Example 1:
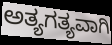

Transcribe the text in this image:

ಅತ್ಯಗತ್ಯವಾಗಿ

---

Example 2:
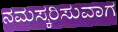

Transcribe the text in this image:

ನಮಸ್ಕರಿಸುವಾಗ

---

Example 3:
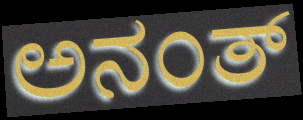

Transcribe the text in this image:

ಅನಂತ್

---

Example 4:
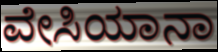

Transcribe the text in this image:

ವೇಸಿಯಾನಾ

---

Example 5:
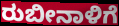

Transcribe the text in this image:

ರುಬೀನಾಳಿಗೆ